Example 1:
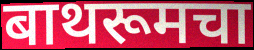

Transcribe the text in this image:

बाथरूमचा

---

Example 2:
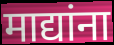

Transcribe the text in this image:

माद्यांना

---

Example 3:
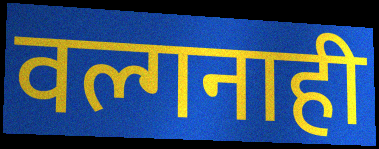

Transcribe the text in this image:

वल्गनाही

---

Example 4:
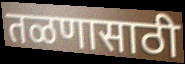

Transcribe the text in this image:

तळणासाठी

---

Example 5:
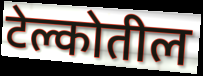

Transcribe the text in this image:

टेल्कोतील